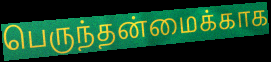
பெருந்தன்மைக்காக